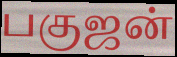
பகுஜன்